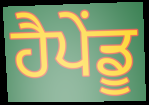
ਹੈਪੇਂਡੂ